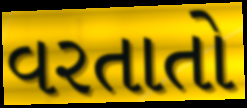
વરતાતો